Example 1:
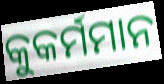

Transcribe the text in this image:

କୁକର୍ମମାନ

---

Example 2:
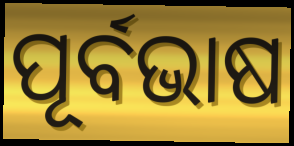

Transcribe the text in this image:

ପୂର୍ବଭାଷ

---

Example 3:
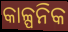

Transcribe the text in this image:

କାଳ୍ପନିକ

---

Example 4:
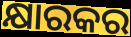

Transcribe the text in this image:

କ୍ଷାରକର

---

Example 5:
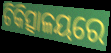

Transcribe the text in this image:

ଚିକିତ୍ସାଳୟରେ